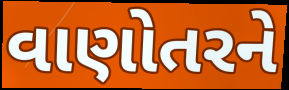
વાણોતરને